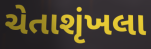
ચેતાશૃંખલા